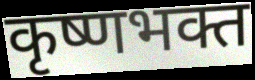
कृष्णभक्त